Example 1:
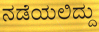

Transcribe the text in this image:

ನಡೆಯಲಿದ್ದು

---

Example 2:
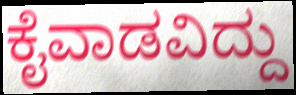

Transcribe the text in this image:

ಕೈವಾಡವಿದ್ದು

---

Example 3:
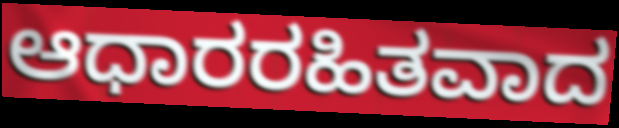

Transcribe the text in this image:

ಆಧಾರರಹಿತವಾದ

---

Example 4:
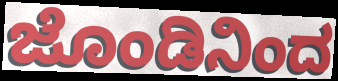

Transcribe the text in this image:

ಜೊಂಡಿನಿಂದ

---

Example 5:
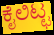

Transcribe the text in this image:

ಕೈಲಿಟ್ಟ